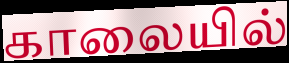
காலையில்